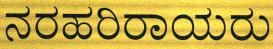
ನರಹರಿರಾಯರು